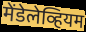
मेंडेलेव्हियम